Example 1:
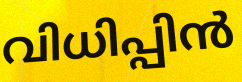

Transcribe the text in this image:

വിധിപ്പിൻ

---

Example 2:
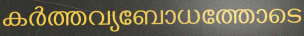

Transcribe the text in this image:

കർത്തവ്യബോധത്തോടെ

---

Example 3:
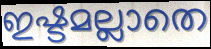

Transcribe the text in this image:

ഇഷ്ടമല്ലാതെ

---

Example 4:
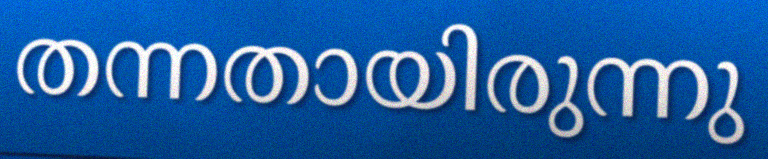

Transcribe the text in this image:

തന്നതായിരുന്നു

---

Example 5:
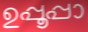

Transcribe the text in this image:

ഉപ്പൂപ്പാ